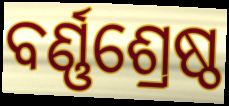
ବର୍ଣ୍ଣଶ୍ରେଷ୍ଠ